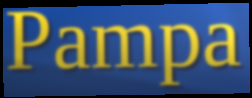
Pampa